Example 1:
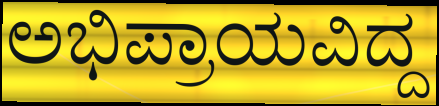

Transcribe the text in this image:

ಅಭಿಪ್ರಾಯವಿದ್ದ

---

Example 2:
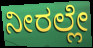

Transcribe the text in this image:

ನೀರಲ್ಲೇ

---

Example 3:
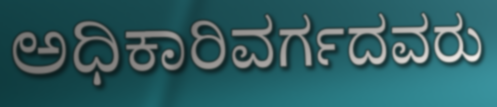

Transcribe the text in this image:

ಅಧಿಕಾರಿವರ್ಗದವರು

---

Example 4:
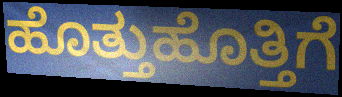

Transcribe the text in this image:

ಹೊತ್ತುಹೊತ್ತಿಗೆ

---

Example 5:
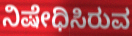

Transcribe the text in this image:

ನಿಷೇಧಿಸಿರುವ